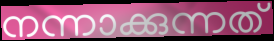
നന്നാക്കുന്നത്